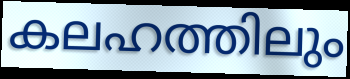
കലഹത്തിലും